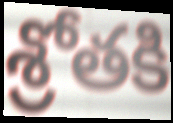
శ్రోతకి